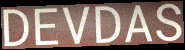
DEVDAS